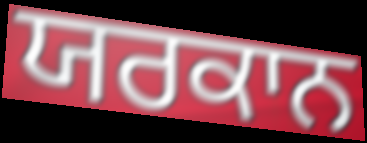
ਯਰਕਾਨ